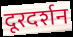
दूरदर्शन